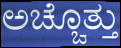
ಅಚ್ಚೊತ್ತು